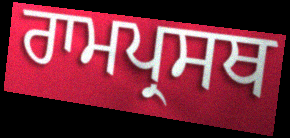
ਰਾਮਪ੍ਰਸਥ